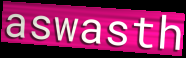
aswasth